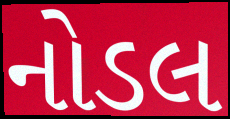
નોડલ